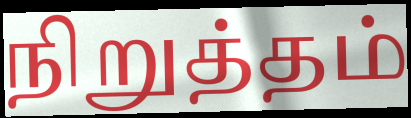
நிறுத்தம்